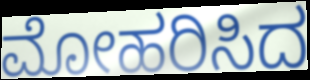
ಮೋಹರಿಸಿದ